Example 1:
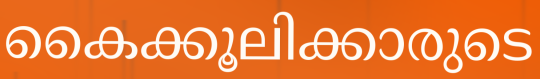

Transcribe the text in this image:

കൈക്കൂലിക്കാരുടെ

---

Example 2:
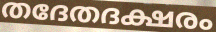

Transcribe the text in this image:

തദേതദക്ഷരം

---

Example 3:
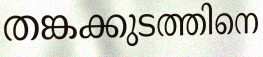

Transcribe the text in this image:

തങ്കക്കുടത്തിനെ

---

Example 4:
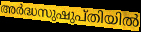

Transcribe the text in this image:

അർദ്ധസുഷുപ്തിയിൽ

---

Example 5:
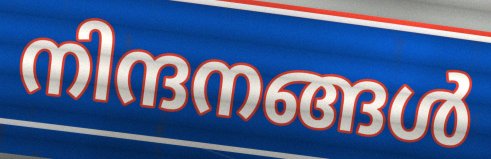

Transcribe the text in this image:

നിന്ദനങ്ങൾ